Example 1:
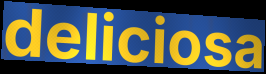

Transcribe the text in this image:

deliciosa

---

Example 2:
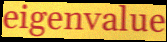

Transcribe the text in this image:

eigenvalue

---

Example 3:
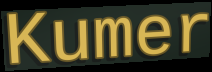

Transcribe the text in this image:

Kumer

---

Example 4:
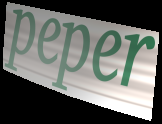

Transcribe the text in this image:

peper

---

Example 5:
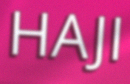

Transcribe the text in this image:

HAJI